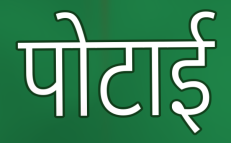
पोटाई